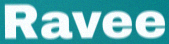
Ravee